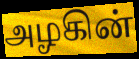
அழகின்